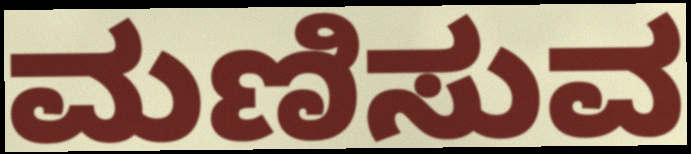
ಮಣಿಸುವ